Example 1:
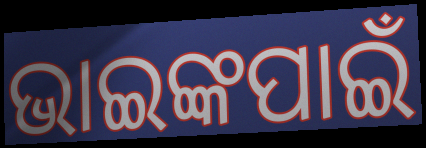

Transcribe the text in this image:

ଭାଇଙ୍କପାଇଁ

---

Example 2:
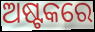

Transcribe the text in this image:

ଅଷ୍ଟକରେ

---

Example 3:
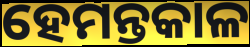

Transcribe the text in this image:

ହେମନ୍ତକାଳ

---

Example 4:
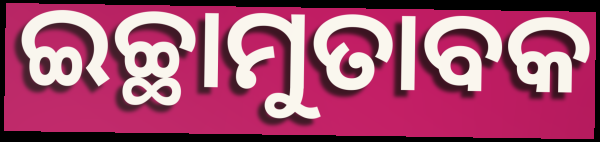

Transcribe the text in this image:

ଇଚ୍ଛାମୁତାବକ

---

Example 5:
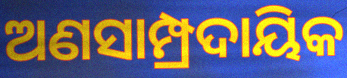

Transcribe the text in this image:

ଅଣସାମ୍ପ୍ରଦାୟିକ